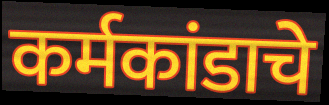
कर्मकांडाचे